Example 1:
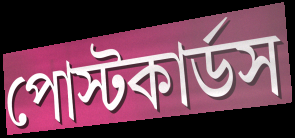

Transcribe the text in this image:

পোস্টকার্ডস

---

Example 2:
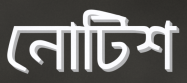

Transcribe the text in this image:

নোটিশ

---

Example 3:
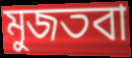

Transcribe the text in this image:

মুজতবা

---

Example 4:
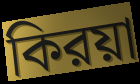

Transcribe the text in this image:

কিরয়া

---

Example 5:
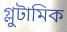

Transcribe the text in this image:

গ্লুটামিক